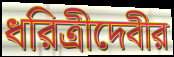
ধরিত্রীদেবীর